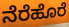
ನೆರೆಹೊರೆ